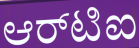
ಆರ್‌ಟಿಐ